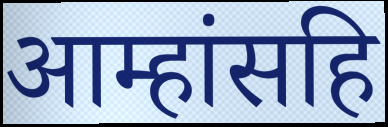
आम्हांसहि